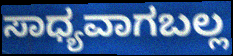
ಸಾಧ್ಯವಾಗಬಲ್ಲ